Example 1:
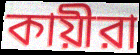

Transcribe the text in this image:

কায়ীরা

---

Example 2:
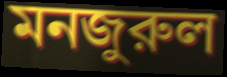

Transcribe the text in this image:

মনজুরুল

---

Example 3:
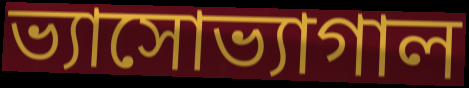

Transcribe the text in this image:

ভ্যাসোভ্যাগাল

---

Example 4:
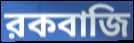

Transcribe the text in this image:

রকবাজি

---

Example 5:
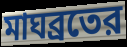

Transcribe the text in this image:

মাঘব্রতের